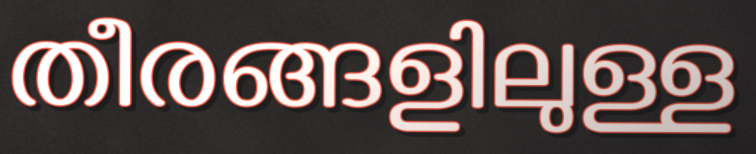
തീരങ്ങളിലുള്ള